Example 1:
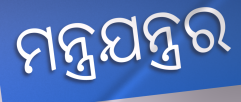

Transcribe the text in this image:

ମନ୍ତ୍ରଯନ୍ତ୍ରର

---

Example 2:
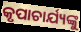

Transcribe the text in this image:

କୃପାଚାର୍ଯ୍ୟଙ୍କୁ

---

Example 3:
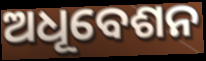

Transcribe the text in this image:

ଅଧୂବେଶନ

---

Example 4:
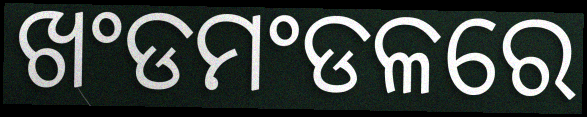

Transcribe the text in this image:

ଖଂଡମଂଡଳରେ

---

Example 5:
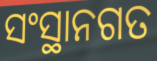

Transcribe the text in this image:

ସଂସ୍ଥାନଗତ